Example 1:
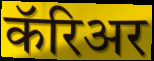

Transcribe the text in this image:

कॅरिअर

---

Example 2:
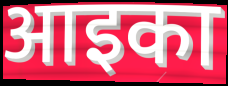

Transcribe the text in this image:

आइका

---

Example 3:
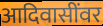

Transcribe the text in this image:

आदिवासींवर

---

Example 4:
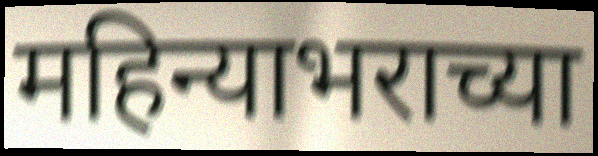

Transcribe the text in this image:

महिन्याभराच्या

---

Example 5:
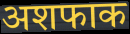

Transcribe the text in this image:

अशफाक